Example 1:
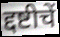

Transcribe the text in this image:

द्दष्टीचें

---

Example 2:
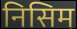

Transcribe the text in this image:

निसिम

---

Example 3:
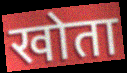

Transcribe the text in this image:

खोता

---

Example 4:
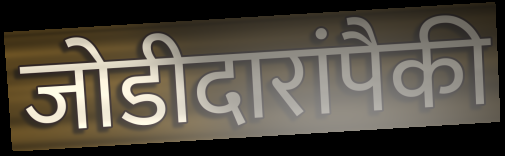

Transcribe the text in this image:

जोडीदारांपैकी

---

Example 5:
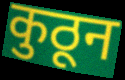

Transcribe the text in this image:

कुठून